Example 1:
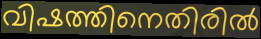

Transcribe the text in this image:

വിഷത്തിനെതിരിൽ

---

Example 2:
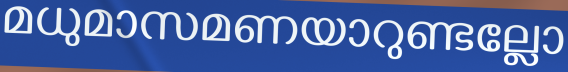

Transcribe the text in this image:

മധുമാസമണയാറുണ്ടല്ലോ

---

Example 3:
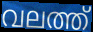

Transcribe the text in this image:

വലത്ത്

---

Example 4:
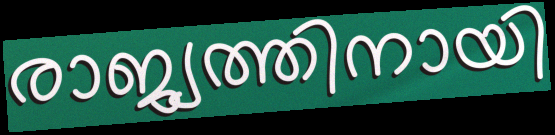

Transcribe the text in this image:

രാജ്യത്തിനായി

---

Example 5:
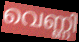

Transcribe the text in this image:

വെണ്ണി